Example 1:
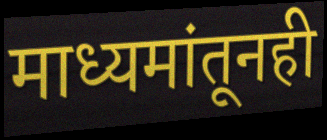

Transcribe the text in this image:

माध्यमांतूनही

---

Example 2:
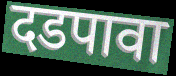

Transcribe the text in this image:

दडपावा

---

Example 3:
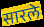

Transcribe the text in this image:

सारले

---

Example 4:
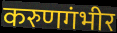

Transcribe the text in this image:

करुणगंभीर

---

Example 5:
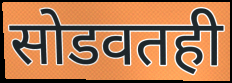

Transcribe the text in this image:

सोडवतही